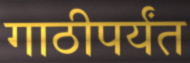
गाठीपर्यंत